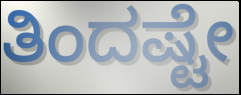
ತಿಂದಷ್ಟೇ